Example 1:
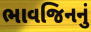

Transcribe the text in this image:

ભાવજિનનું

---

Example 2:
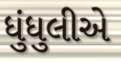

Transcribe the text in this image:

ધુંધુલીએ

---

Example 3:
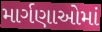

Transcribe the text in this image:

માર્ગણાઓમાં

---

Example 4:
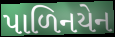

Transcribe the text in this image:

પાળિનયેન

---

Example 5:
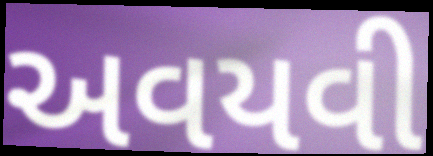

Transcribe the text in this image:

અવયવી